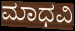
ಮಾಧವಿ